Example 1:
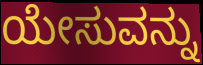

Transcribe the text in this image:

ಯೇಸುವನ್ನು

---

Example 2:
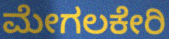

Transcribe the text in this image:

ಮೇಗಲಕೇರಿ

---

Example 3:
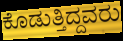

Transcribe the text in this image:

ಕೊಡುತ್ತಿದ್ದವರು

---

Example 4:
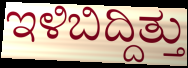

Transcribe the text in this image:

ಇಳಿಬಿದ್ದಿತ್ತು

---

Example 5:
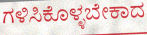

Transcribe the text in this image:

ಗಳಿಸಿಕೊಳ್ಳಬೇಕಾದ